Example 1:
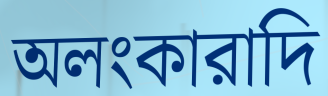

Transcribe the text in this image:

অলংকারাদি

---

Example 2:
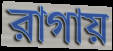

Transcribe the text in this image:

রাগায়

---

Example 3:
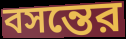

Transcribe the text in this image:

বসন্তের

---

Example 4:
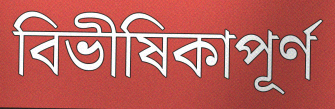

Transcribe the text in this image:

বিভীষিকাপূর্ণ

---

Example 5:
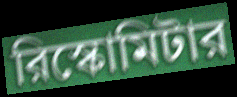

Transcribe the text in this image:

রিস্কোমিটার